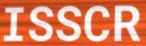
ISSCR